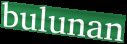
bulunan